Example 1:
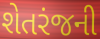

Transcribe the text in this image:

શેતરંજની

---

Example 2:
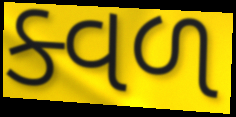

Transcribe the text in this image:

ક્વળ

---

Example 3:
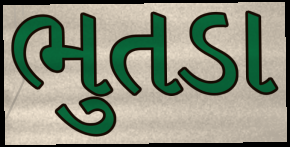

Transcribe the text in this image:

ભુતડા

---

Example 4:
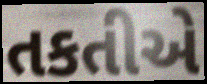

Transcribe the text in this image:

તકતીએ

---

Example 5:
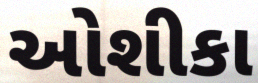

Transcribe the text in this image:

ઓશીકા